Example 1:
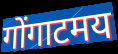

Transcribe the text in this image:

गोंगाटमय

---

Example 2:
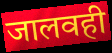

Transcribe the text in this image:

जालवही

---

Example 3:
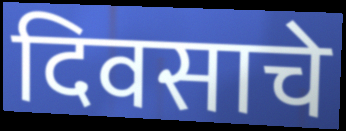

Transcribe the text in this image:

दिवसाचे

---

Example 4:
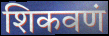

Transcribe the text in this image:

शिकवणं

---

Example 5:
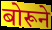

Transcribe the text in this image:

बोरूने